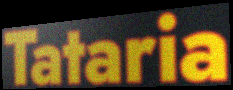
Tataria